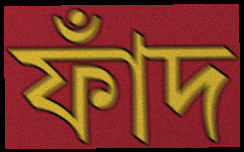
ফাঁদ